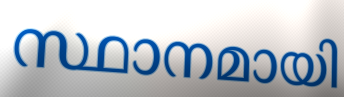
സ്ഥാനമായി